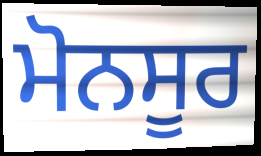
ਮੋਨਸੂਰ